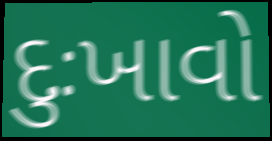
દુઃખાવો